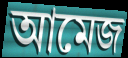
আমেজ